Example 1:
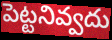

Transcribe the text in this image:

పెట్టనివ్వదు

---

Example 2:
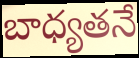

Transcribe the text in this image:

బాధ్యతనే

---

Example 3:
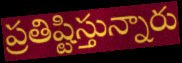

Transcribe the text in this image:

ప్రతిష్టిస్తున్నారు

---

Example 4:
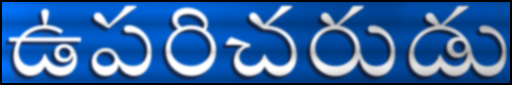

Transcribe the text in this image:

ఉపరిచరుడు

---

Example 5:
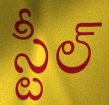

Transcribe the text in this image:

స్టీల్